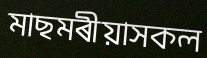
মাছমৰীয়াসকল